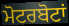
ਮੋਟਰਬੋਟਾਂ